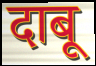
दाबू